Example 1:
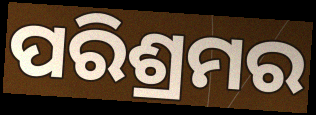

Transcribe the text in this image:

ପରିଶ୍ରମର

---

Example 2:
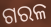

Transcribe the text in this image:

ଗରଳ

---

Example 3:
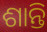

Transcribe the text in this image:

ଶାନ୍ତି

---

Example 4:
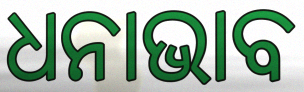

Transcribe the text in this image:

ଧନାଭାବ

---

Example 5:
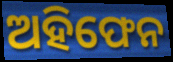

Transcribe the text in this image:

ଅହିଫେନ